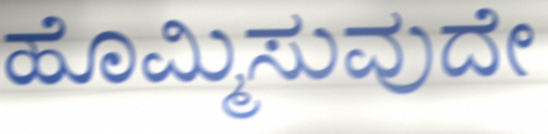
ಹೊಮ್ಮಿಸುವುದೇ